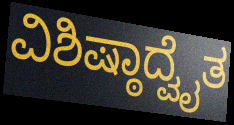
ವಿಶಿಷ್ಠಾದ್ವೈತ